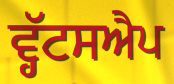
ਵ੍ਹੱਟਸਐਪ